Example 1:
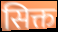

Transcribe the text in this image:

सिक्त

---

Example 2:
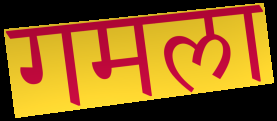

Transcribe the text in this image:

गमला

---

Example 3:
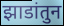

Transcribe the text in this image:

झाडांतुन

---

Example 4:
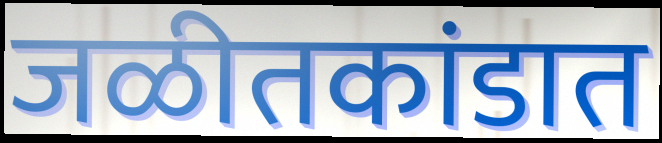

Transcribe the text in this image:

जळीतकांडात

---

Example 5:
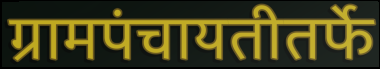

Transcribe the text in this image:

ग्रामपंचायतीतर्फे